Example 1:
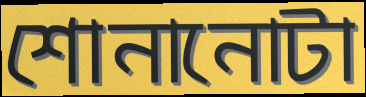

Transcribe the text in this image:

শোনানোটা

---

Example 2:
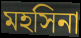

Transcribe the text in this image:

মহসিনা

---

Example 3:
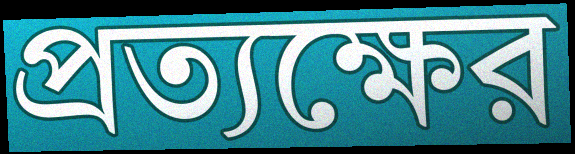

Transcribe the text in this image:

প্রত্যক্ষের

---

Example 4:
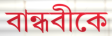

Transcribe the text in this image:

বান্ধবীকে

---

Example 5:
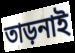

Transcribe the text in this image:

তাড়নাই